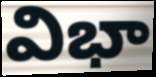
విభా